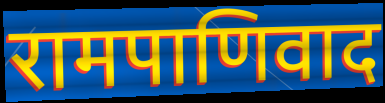
रामपाणिवाद